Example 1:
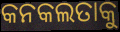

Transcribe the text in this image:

କନକଲତାକୁ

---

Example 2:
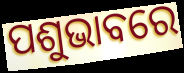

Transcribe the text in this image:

ପଶୁଭାବରେ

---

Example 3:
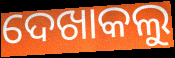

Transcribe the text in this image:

ଦେଖାକଲୁ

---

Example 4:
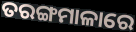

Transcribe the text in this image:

ତରଙ୍ଗମାଳାରେ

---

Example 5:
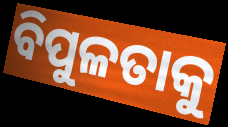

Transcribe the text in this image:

ବିପୁଳତାକୁ